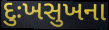
દુઃખસુખના